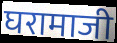
घरामाजी